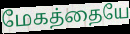
மேகத்தையே